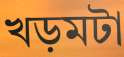
খড়মটা